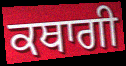
ਕਥਾਗੀ